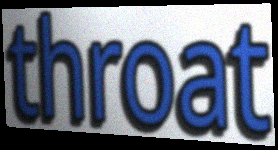
throat